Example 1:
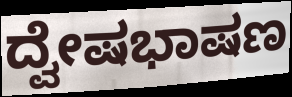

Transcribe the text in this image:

ದ್ವೇಷಭಾಷಣ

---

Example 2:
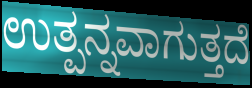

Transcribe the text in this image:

ಉತ್ಪನ್ನವಾಗುತ್ತದೆ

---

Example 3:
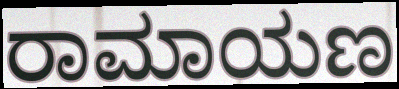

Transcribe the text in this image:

ರಾಮಾಯಣ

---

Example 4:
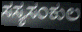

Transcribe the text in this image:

ಸಸ್ಯಸಂಕುಲ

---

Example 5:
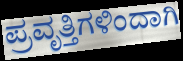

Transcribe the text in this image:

ಪ್ರವೃತ್ತಿಗಳಿಂದಾಗಿ